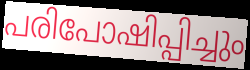
പരിപോഷിപ്പിച്ചും